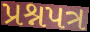
પ્રશ્નપત્ર